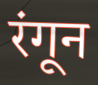
रंगून